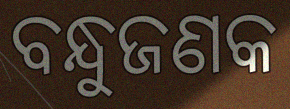
ବନ୍ଧୁଜଣକ